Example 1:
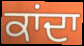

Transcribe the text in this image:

ਕਾਂਦਾ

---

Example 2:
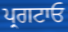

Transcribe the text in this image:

ਪ੍ਰਗਟਾਓ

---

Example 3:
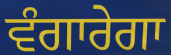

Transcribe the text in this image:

ਵੰਗਾਰੇਗਾ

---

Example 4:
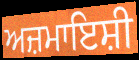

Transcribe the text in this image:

ਅਜ਼ਮਾਇਸ਼ੀ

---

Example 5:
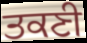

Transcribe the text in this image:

ਤਕਣੀ